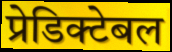
प्रेडिक्टेबल